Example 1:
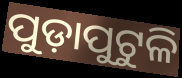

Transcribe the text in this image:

ପୁଡ଼ାପୁଟୁଳି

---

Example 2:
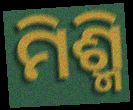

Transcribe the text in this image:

ମିଶ୍ମି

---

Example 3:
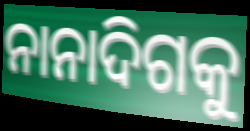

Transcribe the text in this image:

ନାନାଦିଗକୁ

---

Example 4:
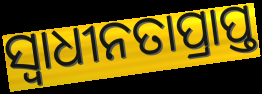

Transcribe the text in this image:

ସ୍ବାଧୀନତାପ୍ରାପ୍ତ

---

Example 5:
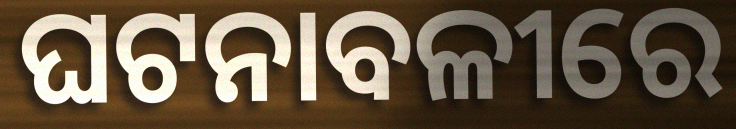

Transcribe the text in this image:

ଘଟନାବଳୀରେ